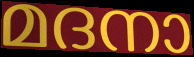
മദനാ